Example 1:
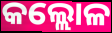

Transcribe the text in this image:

କଲ୍ଲୋଳ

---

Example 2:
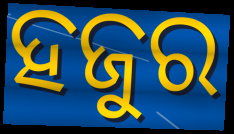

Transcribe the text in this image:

ହଜୁର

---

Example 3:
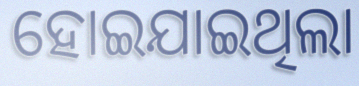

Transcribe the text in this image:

ହୋଇଯାଇଥିଲା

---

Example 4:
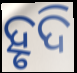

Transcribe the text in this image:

ହୃଦି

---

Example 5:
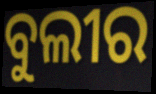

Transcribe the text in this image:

ବୁଲୀର